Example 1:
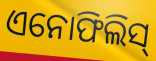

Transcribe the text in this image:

ଏନୋଫିଲିସ୍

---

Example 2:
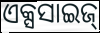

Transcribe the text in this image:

ଏକ୍ସସାଇଜ୍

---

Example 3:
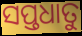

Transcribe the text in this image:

ସପ୍ତଧାତୁ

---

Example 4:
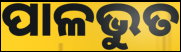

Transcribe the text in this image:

ପାଳଭୁତ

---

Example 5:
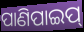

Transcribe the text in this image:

ପାଣିପାଇପ୍